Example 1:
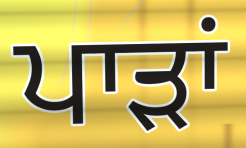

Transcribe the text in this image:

ਪਾੜਾਂ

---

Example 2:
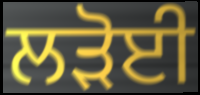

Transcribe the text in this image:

ਲੜੋਈ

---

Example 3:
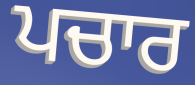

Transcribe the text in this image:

ਪਚਾਰ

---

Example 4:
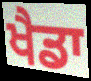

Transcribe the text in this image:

ਖੈਡਾ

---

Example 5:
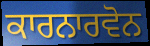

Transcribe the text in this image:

ਕਾਰਨਾਰਵੋਨ